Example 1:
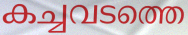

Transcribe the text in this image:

കച്ചവടത്തെ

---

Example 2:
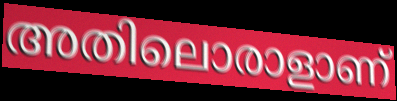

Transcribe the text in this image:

അതിലൊരാളാണ്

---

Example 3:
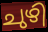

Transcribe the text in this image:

ചുഴി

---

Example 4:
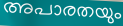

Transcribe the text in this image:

അപാരതയും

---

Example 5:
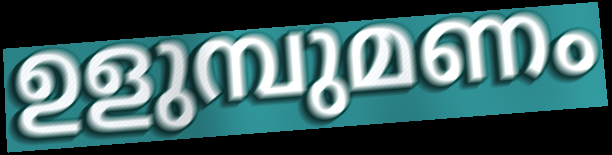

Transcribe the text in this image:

ഉളുമ്പുമണം